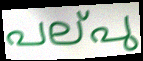
പല്‌പു